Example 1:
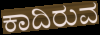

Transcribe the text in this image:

ಕಾದಿರುವ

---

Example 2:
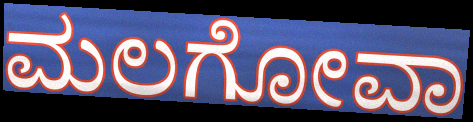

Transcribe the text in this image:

ಮಲಗೋವಾ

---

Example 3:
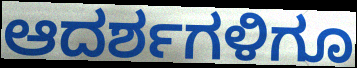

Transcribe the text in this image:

ಆದರ್ಶಗಳಿಗೂ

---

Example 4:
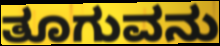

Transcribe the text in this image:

ತೂಗುವನು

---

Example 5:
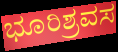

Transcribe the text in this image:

ಭೂರಿಶ್ರವಸ